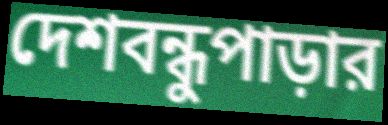
দেশবন্ধুপাড়ার